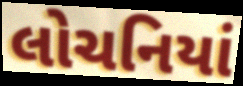
લોચનિયાં